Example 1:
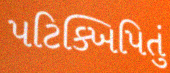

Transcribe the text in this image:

પટિક્ખિપિતું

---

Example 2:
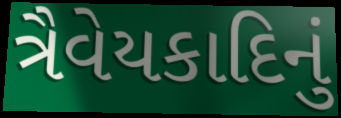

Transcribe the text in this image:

ત્રૈવેયકાદિનું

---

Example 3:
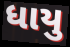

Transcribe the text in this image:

ધાયુ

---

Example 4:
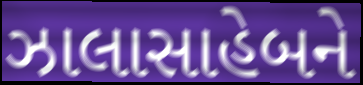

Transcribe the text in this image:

ઝાલાસાહેબને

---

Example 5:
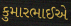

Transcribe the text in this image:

કુમારભાઈએ